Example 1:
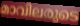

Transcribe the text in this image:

മാവിലരുടെ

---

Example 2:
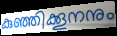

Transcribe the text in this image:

കുഞ്ഞിക്കൂനനും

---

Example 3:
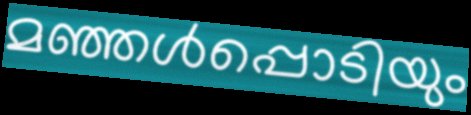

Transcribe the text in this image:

മഞ്ഞൾപ്പൊടിയും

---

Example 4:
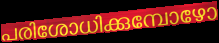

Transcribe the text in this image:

പരിശോധിക്കുമ്പോഴോ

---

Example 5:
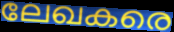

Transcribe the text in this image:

ലേഖകരെ